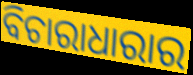
ବିଚାରାଧାରାର